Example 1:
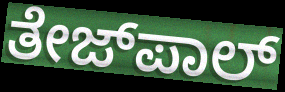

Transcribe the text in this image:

ತೇಜ್‌ಪಾಲ್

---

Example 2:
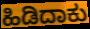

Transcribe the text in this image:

ಹಿಡಿದಾಕು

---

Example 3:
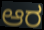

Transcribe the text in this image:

ಆರ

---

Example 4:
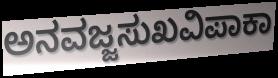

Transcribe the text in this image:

ಅನವಜ್ಜಸುಖವಿಪಾಕಾ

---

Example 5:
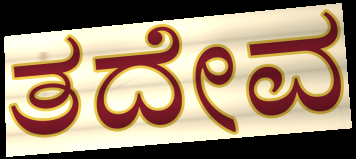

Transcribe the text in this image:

ತದೇವ